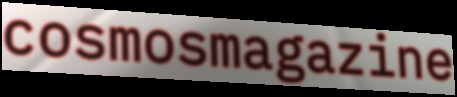
cosmosmagazine